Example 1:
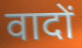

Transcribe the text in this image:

वादों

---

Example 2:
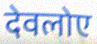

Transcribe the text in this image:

देवलोए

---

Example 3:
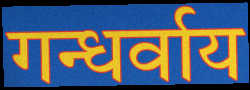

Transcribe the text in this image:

गन्धर्वाय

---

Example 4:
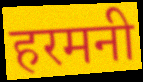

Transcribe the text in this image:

हरमनी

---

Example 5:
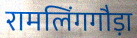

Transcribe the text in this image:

रामलिंगगौड़ा